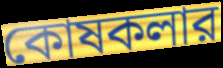
কোষকলার